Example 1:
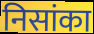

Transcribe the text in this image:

निसांका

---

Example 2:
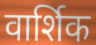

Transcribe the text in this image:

वार्शिक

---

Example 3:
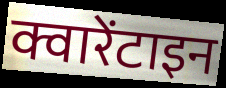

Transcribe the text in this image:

क्वारेंटाइन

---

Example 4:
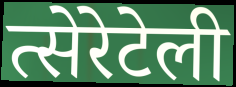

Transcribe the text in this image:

त्सेरेटेली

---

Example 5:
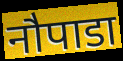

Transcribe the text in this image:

नौपाडा